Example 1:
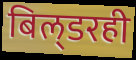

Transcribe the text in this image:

बिल्डरही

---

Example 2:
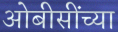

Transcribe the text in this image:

ओबीसींच्या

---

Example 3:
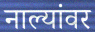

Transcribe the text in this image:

नाल्यांवर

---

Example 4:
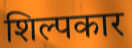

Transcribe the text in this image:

शिल्पकार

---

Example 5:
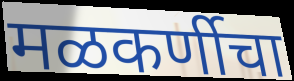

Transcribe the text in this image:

मळकर्णीचा